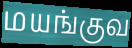
மயங்குவ